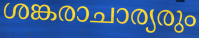
ശങ്കരാചാര്യരും